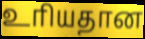
உரியதான